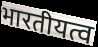
भारतीयत्व